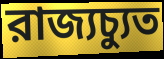
রাজ্যচ্যুত